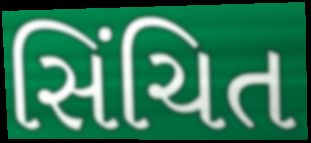
સિંચિત